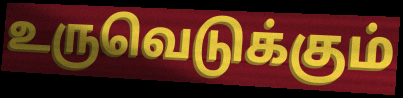
உருவெடுக்கும்